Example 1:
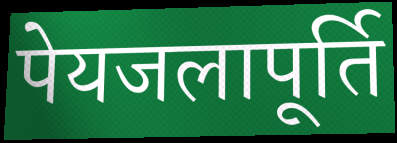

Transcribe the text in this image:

पेयजलापूर्ति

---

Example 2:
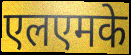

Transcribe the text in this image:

एलएमके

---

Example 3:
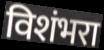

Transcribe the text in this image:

विशंभरा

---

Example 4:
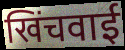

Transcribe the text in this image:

खिंचवाई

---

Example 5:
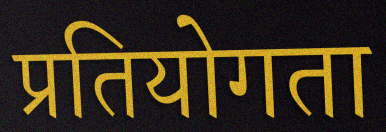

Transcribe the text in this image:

प्रतियोगता